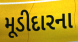
મૂડીદારના